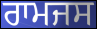
ਰਾਮਜਸ